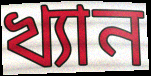
খ্যান